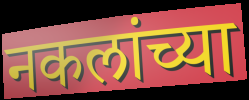
नकलांच्या